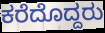
ಕರೆದೊದ್ದರು